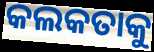
କଲକତାକୁ